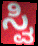
ಸ್ವಿ